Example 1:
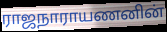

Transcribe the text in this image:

ராஜநாராயணனின்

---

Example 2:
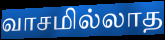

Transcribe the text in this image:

வாசமில்லாத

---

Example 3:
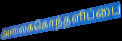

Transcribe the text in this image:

அலைக்கொந்தளிப்பை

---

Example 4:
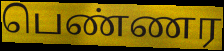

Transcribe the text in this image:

பெண்ணர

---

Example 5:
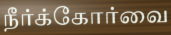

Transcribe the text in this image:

நீர்க்கோர்வை